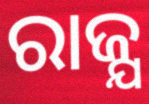
ରାଜ୍ଯ